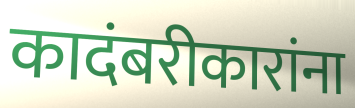
कादंबरीकारांना